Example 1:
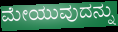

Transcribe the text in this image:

ಮೇಯುವುದನ್ನು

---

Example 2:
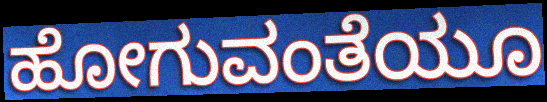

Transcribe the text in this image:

ಹೋಗುವಂತೆಯೂ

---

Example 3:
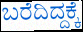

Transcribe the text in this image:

ಬರೆದಿದ್ದಕ್ಕೆ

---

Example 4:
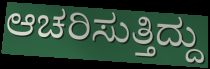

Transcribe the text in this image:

ಆಚರಿಸುತ್ತಿದ್ದು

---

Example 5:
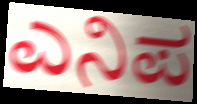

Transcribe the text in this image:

ಎನಿಪ